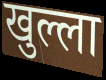
खुल्ला